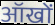
ऑखों